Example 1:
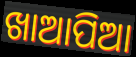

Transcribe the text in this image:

ଖାଆପିଆ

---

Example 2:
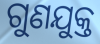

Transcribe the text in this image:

ଗୁଣଯୁକ୍ତ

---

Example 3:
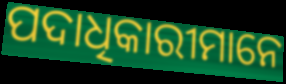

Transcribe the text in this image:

ପଦାଧିକାରୀମାନେ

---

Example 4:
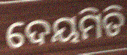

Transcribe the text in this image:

ଦେୟମିତି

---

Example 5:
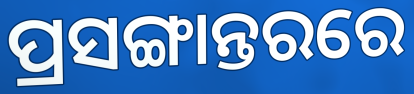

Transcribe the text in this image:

ପ୍ରସଙ୍ଗାନ୍ତରରେ